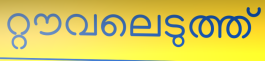
റ്റൗവലെടുത്ത്